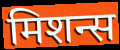
मिशन्स